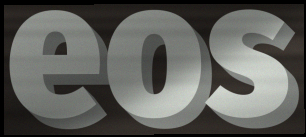
eos